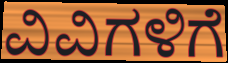
ವಿವಿಗಳಿಗೆ